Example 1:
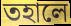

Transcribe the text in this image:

তহালে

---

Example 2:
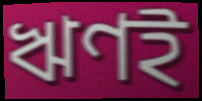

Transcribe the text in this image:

ঋণই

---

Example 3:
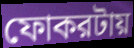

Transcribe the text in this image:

ফোকরটায়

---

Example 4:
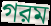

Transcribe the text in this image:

গরম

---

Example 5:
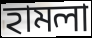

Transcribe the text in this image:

হামলা